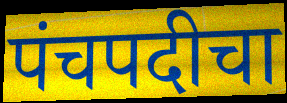
पंचपदीचा